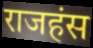
राजहंस